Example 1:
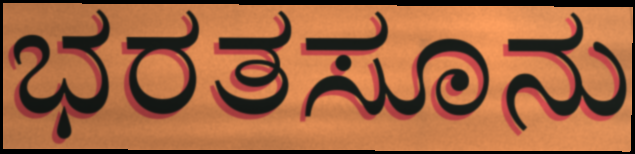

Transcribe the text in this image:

ಭರತಸೂನು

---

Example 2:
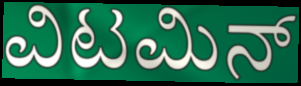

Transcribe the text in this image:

ವಿಟಮಿನ್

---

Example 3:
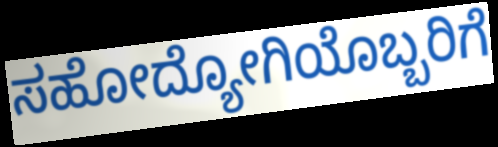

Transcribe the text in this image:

ಸಹೋದ್ಯೋಗಿಯೊಬ್ಬರಿಗೆ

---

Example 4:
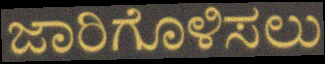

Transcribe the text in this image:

ಜಾರಿಗೊಳಿಸಲು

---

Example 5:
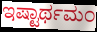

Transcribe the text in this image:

ಇಷ್ಟಾರ್ಥಮಂ